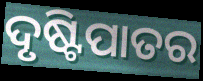
ଦୃଷ୍ଟିପାତର